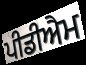
ਪੀਡੀਐਮ